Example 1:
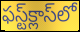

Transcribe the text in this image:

ఫస్ట్‌క్లాస్‌లో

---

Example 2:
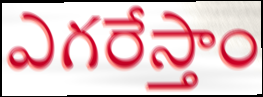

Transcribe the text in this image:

ఎగరేస్తాం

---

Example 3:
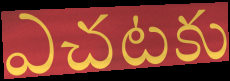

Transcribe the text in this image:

ఎచటకు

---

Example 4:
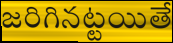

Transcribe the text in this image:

జరిగినట్టయితే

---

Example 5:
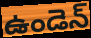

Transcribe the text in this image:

ఉండెన్